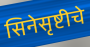
सिनेसृष्टीचे